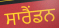
ਸਾਰੈਂਡਨ